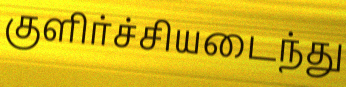
குளிர்ச்சியடைந்து